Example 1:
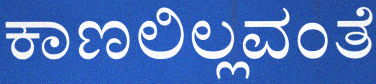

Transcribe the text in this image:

ಕಾಣಲಿಲ್ಲವಂತೆ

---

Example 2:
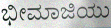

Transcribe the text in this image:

ಭೀಮಾಜಿಯು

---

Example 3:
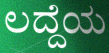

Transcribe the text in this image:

ಲದ್ದೆಯ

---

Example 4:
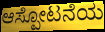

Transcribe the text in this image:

ಆಸ್ಪೋಟನೆಯ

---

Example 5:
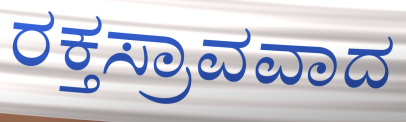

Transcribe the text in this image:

ರಕ್ತಸ್ರಾವವಾದ